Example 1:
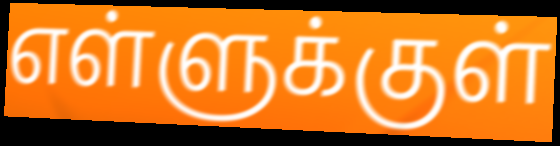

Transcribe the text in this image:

எள்ளுக்குள்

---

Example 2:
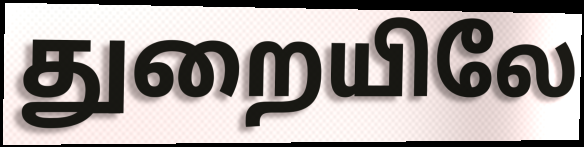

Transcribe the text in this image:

துறையிலே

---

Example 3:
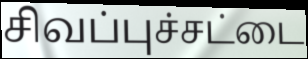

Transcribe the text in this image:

சிவப்புச்சட்டை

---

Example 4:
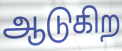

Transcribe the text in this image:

ஆடுகிற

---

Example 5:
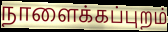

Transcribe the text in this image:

நாளைக்கப்புறம்